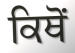
ਕਿਥੋਂ